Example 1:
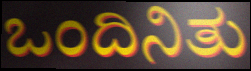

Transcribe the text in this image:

ಒಂದಿನಿತು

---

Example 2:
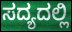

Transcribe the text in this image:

ಸದ್ಯದಲ್ಲಿ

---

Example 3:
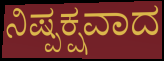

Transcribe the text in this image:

ನಿಷ್ಪಕ್ಷವಾದ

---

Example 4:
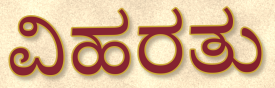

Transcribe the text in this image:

ವಿಹರತು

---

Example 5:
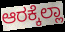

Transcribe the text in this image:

ಆರಕ್ಕೆಲ್ಲಾ